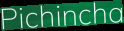
Pichincha